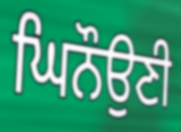
ਘਿਨੌਉਣੀ